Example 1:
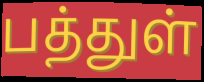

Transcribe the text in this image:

பத்துள்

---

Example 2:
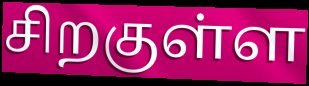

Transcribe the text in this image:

சிறகுள்ள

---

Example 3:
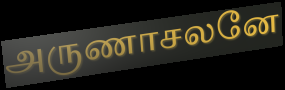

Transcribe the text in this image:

அருணாசலனே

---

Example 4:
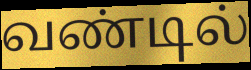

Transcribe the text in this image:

வண்டில்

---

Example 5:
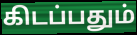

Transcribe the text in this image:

கிடப்பதும்